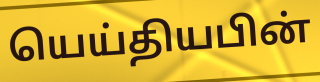
யெய்தியபின்